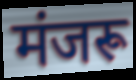
मंजरू